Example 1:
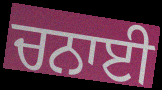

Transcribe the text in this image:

ਚਨਾਈ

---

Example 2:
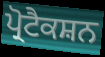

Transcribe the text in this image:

ਪ੍ਰੋਟੈਕਸ਼ਨ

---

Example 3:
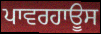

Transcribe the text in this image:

ਪਾਵਰਹਾਊਸ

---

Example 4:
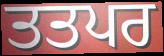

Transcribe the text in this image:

ਤਤਪਰ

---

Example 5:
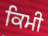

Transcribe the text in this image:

ਕਿਮੀ